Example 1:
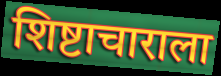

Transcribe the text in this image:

शिष्टाचाराला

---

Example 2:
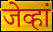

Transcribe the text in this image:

जेव्हां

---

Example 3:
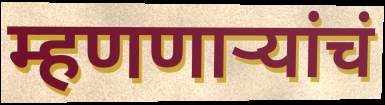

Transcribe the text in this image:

म्हणणाऱ्यांचं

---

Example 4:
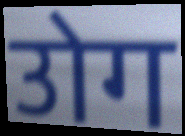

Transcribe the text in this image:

उोग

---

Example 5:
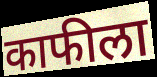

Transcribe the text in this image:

काफीला